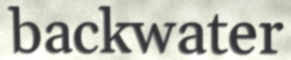
backwater